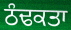
ਠੰਢਕਤਾ